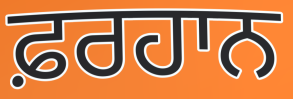
ਫ਼ਰਹਾਨ